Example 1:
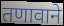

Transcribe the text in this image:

तणावाने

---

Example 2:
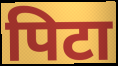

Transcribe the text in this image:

पिटा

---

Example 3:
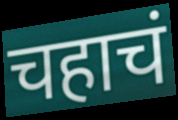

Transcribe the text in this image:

चहाचं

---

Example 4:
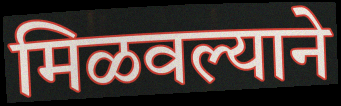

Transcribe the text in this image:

मिळवल्याने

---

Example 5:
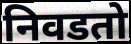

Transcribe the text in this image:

निवडतो